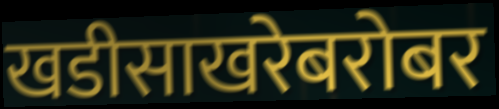
खडीसाखरेबरोबर